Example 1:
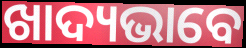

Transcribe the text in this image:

ଖାଦ୍ୟଭାବେ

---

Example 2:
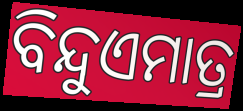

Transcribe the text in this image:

ବିନ୍ଦୁଏମାତ୍ର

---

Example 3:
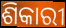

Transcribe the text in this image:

ଶିକାରୀ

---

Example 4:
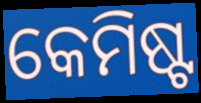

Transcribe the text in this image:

କେମିଷ୍ଟ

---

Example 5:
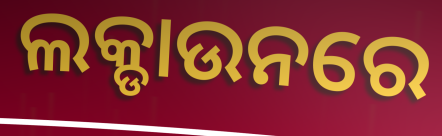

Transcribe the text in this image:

ଲକ୍ଡାଉନରେ